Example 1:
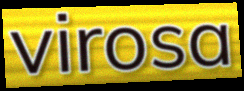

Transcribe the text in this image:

virosa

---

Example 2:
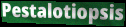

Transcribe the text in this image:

Pestalotiopsis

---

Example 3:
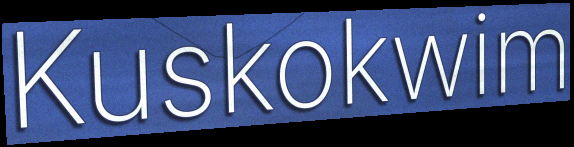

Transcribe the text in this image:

Kuskokwim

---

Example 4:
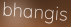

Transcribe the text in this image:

bhangis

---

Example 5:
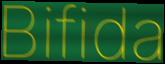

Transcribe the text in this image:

Bifida